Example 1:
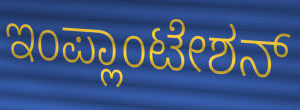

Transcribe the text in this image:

ಇಂಪ್ಲಾಂಟೇಶನ್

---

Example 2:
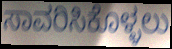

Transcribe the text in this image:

ಸಾವರಿಸಿಕೊಳ್ಳಲು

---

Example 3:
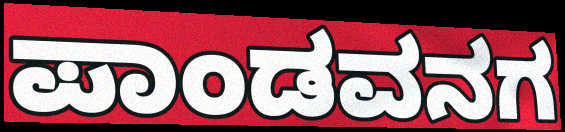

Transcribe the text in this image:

ಪಾಂಡವನಗ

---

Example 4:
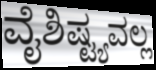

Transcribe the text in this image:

ವೈಶಿಷ್ಟ್ಯವಲ್ಲ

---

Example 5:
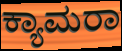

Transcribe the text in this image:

ಕ್ಯಾಮರಾ